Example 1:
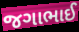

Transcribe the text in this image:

જગાભાઈ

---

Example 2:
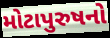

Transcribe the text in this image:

મોટાપુરુષનો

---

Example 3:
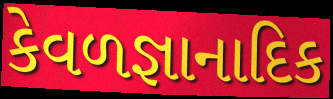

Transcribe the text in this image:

કેવળજ્ઞાનાદિક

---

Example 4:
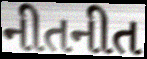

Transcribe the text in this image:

નીતનીત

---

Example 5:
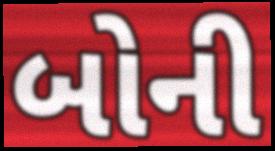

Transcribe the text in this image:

બોની